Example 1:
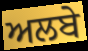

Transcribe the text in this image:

ਅਲਬੇ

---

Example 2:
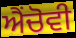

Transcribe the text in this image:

ਐਂਚੋਵੀ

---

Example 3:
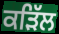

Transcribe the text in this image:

ਕੜਿੱਲ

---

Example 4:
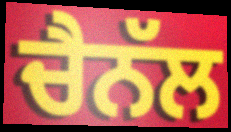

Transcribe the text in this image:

ਚੈਨੱਲ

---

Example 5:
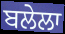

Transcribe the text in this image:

ਬਲੇਲਾ